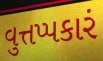
વુત્તપ્પકારં